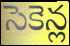
సెకెన్ల